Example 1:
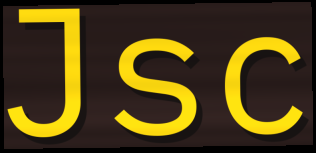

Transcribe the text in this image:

Jsc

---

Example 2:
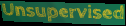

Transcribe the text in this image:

Unsupervised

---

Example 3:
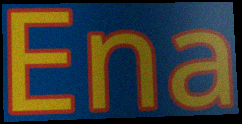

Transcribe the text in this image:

Ena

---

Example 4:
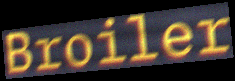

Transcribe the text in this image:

Broiler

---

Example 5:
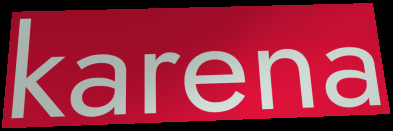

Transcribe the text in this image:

karena